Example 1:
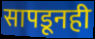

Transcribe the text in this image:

सापडूनही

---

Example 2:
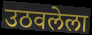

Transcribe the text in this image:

उठवलेला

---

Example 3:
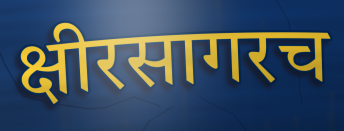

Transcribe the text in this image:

क्षीरसागरच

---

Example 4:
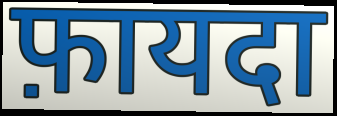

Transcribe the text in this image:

फ़ायदा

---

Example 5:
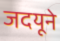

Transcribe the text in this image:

जदयूने